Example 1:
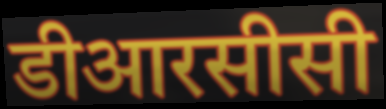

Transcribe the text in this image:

डीआरसीसी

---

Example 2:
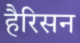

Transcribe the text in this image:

हैरिसन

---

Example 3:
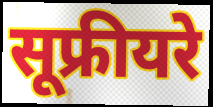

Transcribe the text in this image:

सूफ्रीयरे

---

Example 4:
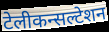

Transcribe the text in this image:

टेलीकन्सल्टेशन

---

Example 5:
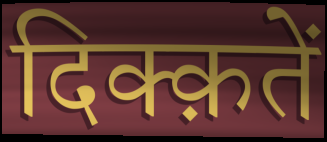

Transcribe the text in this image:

दिक्क़तें